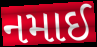
નમાઈ